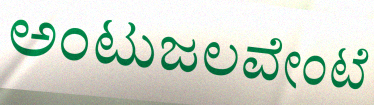
ಅಂಟುಜಲವೇಂಟೆ